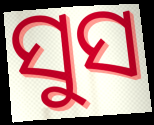
ସୁସ